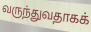
வருந்துவதாகக்